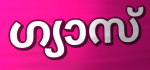
ഗ്യാസ്